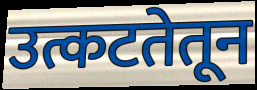
उत्कटतेतून